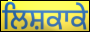
ਲਿਸ਼ਕਾਕੇ